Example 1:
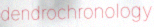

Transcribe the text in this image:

dendrochronology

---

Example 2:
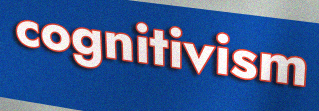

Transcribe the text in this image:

cognitivism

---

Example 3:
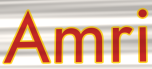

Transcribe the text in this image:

Amri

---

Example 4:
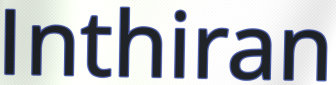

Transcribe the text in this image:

Inthiran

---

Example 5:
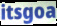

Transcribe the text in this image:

itsgoa